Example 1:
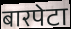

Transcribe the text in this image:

बारपेटा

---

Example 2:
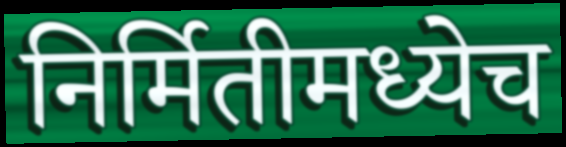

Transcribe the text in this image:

निर्मितीमध्येच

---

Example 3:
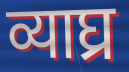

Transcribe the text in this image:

व्याघ्र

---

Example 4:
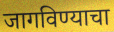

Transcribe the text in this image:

जागविण्याचा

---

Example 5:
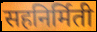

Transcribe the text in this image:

सहनिर्मिती